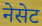
नेसेट